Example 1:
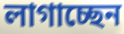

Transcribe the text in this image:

লাগাচ্ছেন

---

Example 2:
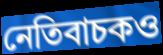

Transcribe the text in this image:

নেতিবাচকও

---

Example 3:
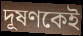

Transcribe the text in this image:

দূষণকেই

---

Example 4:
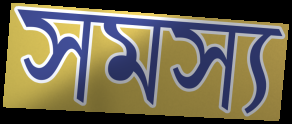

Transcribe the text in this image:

সমস্য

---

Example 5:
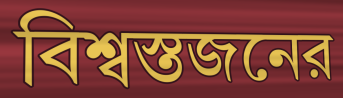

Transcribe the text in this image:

বিশ্বস্তজনের